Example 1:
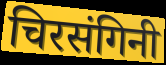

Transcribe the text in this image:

चिरसंगिनी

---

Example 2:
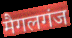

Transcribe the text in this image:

मैगलगंज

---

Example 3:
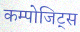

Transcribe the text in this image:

कम्पोजिट्स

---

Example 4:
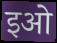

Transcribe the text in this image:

इओ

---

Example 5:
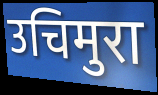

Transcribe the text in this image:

उचिमुरा